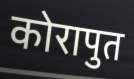
कोरापुत